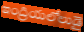
ఇంద్రియలోలుడై